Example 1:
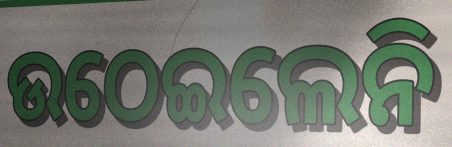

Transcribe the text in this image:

ଉଠେଇଲେନି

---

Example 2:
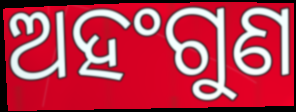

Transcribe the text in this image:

ଅହଂଗୁଣ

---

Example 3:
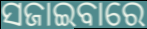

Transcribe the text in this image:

ସଜାଇବାରେ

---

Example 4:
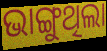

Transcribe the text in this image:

ଭାଙ୍ଗୁଥିଲା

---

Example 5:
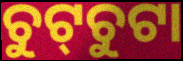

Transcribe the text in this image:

ଚୁଟ୍‌ଚୁଟା